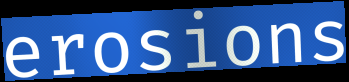
erosions